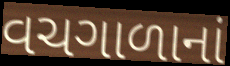
વચગાળાનાં